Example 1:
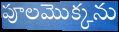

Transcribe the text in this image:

పూలమొక్కను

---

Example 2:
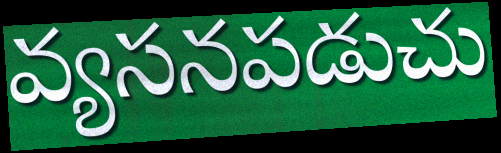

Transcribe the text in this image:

వ్యసనపడుచు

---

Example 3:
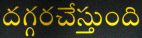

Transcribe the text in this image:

దగ్గరచేస్తుంది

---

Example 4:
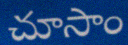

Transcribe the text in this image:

చూసాం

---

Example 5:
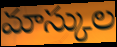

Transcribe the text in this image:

మాస్కుల